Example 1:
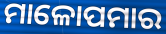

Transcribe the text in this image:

ମାଳୋପମାର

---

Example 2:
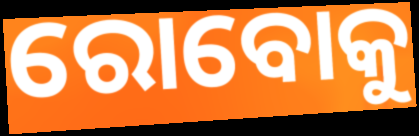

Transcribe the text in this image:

ରୋବୋକୁ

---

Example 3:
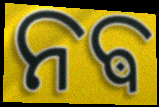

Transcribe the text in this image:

ନଵ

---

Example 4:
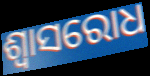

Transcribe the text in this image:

ଶ୍ୱାସରୋଧ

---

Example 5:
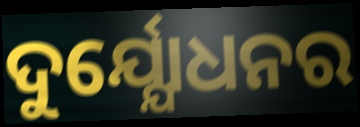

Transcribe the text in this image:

ଦୁର୍ଯ୍ଯୋଧନର